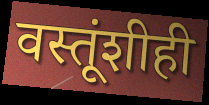
वस्तूंशीही